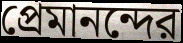
প্রেমানন্দের